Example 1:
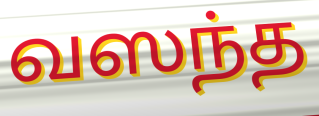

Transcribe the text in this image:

வஸந்த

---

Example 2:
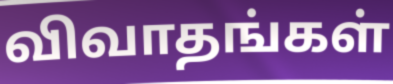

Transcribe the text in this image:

விவாதங்கள்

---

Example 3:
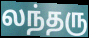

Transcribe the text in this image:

லந்தரு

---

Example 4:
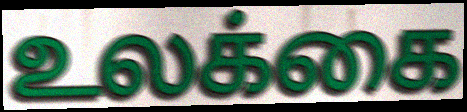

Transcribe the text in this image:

உலக்கை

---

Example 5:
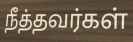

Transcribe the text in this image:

நீத்தவர்கள்